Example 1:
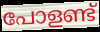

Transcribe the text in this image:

പോളണ്ട്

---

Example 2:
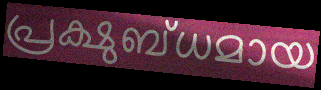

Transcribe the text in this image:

പ്രക്ഷുബ്ധമായ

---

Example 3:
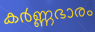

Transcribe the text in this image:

കർണ്ണഭാരം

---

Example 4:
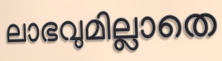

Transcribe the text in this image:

ലാഭവുമില്ലാതെ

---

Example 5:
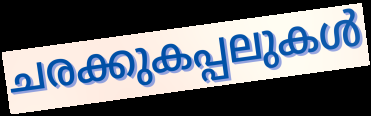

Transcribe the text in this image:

ചരക്കുകപ്പലുകൾ